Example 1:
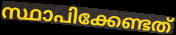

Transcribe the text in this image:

സ്ഥാപിക്കേണ്ടത്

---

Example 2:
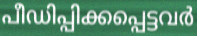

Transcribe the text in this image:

പീഡിപ്പിക്കപ്പെട്ടവർ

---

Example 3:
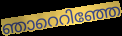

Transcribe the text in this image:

ഞാറെറിഞ്ഞേ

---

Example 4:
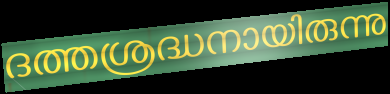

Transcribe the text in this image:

ദത്തശ്രദ്ധനായിരുന്നു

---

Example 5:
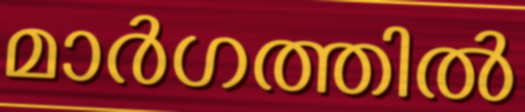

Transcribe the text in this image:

മാർഗത്തിൽ